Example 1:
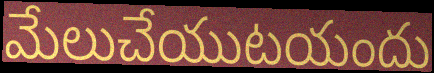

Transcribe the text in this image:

మేలుచేయుటయందు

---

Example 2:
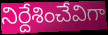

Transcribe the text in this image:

నిర్దేశించేవిగా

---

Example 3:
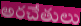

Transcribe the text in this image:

అరచేతులు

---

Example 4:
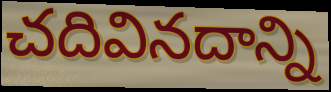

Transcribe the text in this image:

చదివినదాన్ని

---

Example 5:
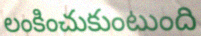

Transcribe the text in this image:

లంకించుకుంటుంది